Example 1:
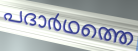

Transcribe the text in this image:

പദാർഥത്തെ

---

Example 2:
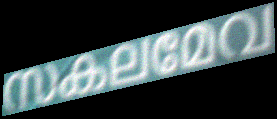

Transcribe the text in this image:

സകലമേവ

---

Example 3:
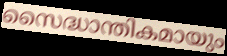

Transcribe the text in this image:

സൈദ്ധാന്തികമായും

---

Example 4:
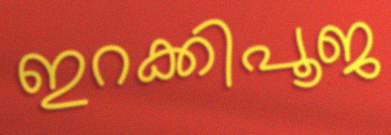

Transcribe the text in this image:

ഇറക്കിപൂജ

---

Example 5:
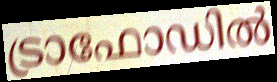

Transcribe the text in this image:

ട്രാഫോഡിൽ